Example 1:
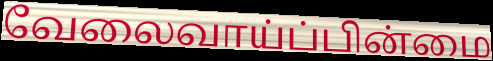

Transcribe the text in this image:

வேலைவாய்ப்பின்மை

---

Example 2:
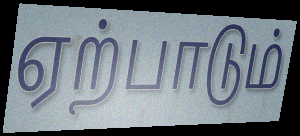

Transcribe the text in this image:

ஏற்பாடும்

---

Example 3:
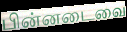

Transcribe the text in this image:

பின்னடைவை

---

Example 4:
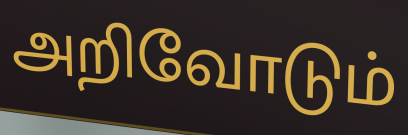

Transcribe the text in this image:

அறிவோடும்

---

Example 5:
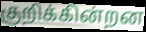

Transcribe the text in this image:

குறிக்கின்றன